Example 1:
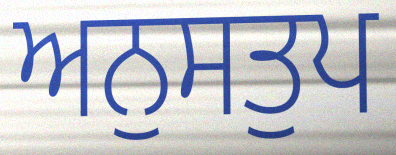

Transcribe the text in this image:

ਅਨੁਸਤੁਪ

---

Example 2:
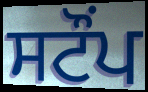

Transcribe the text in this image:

ਸਟੌਂਪ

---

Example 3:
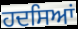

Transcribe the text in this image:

ਹਦਸਿਆਂ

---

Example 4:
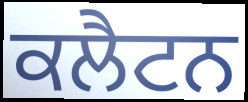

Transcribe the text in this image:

ਕਲੈਟਨ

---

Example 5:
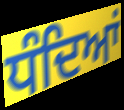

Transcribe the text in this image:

ਧੰਦਿਆਂ